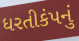
ધરતીકંપનું